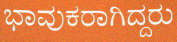
ಭಾವುಕರಾಗಿದ್ದರು